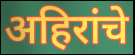
अहिरांचे